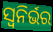
ସ୍ୱନିର୍ଭର